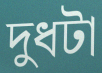
দুধটা